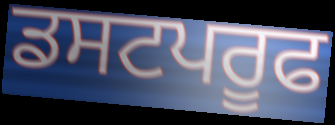
ਡਸਟਪਰੂਫ